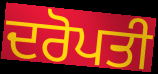
ਦਰੋਪਤੀ